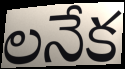
లనేక